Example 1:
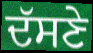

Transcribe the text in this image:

ਦੱਸਣੇ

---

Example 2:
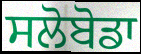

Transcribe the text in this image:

ਸਲੋਬੋਡਾ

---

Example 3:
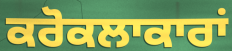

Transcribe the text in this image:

ਕਰੋਕਲਾਕਾਰਾਂ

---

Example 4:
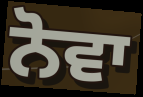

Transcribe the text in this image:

ਨੋਵਾ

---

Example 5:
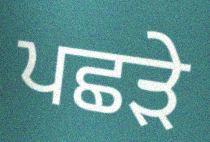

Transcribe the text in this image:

ਪਛੜੇ